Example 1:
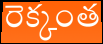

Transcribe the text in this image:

రెక్కంత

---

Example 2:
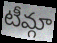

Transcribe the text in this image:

టీమ్గా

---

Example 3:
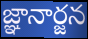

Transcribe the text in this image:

జ్ఞానార్జన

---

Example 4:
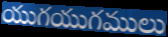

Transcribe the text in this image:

యుగయుగములు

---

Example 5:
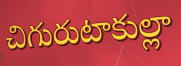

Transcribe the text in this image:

చిగురుటాకుల్లా